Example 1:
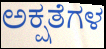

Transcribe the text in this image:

ಅಕ್ಷತೆಗಳ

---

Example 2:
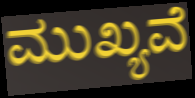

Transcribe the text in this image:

ಮುಖ್ಯವೆ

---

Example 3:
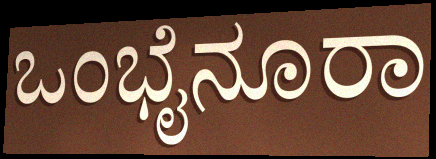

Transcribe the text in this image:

ಒಂಭೈನೂರಾ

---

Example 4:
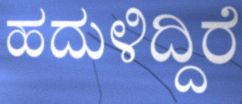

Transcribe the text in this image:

ಹದುಳಿದ್ದಿರೆ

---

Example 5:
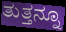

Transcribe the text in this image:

ತುತ್ತನ್ನೂ